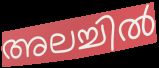
അലച്ചിൽ